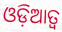
ଓଡ଼ିଆତ୍ୱ